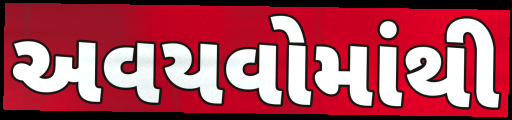
અવયવોમાંથી